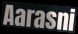
Aarasni